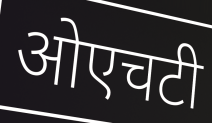
ओएचटी